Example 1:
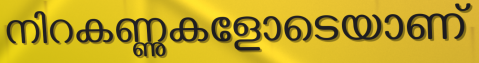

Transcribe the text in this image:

നിറകണ്ണുകളോടെയാണ്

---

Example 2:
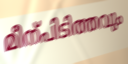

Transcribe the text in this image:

മീന്പിടിത്തവും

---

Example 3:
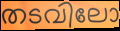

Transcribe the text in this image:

തടവിലോ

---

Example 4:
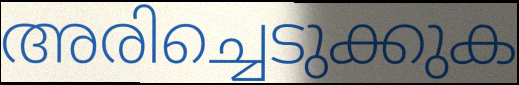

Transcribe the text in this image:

അരിച്ചെടുക്കുക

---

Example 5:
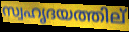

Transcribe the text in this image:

സ്വഹൃദയത്തില്